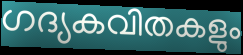
ഗദ്യകവിതകളും